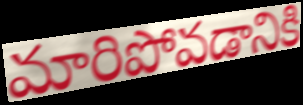
మారిపోవడానికి